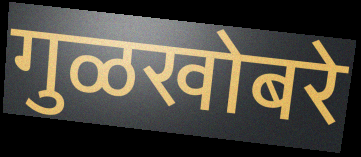
गुळखोबरे